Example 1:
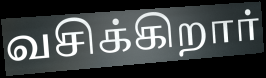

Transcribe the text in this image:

வசிக்கிறார்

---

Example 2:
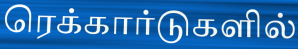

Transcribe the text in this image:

ரெக்கார்டுகளில்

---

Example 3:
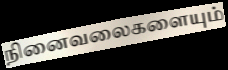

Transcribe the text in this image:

நினைவலைகளையும்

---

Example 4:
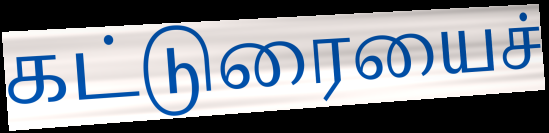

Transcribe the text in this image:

கட்டுரையைச்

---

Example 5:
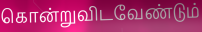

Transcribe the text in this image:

கொன்றுவிடவேண்டும்